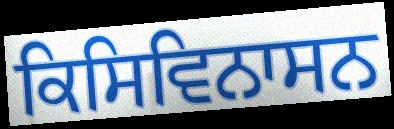
ਕਿਸਿਵਿਨਾਸਨ